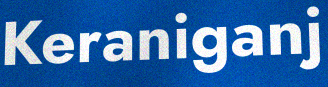
Keraniganj